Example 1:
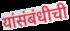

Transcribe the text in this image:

यांसंबंधीची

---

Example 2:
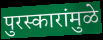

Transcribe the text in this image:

पुरस्कारांमुळे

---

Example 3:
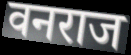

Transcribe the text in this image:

वनराज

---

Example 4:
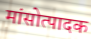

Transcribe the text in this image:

मांसोत्पादक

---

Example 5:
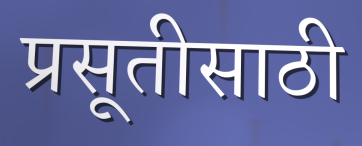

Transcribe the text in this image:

प्रसूतीसाठी